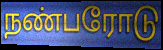
நண்பரோடு